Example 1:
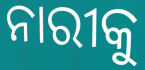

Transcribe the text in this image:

ନାରୀକୁ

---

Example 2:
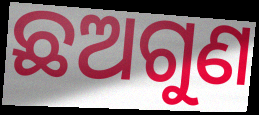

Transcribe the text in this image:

ଛଅଗୁଣ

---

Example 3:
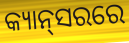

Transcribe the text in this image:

କ୍ୟାନ୍‌ସରରେ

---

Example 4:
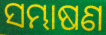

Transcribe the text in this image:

ସମ୍ଭାଷଣ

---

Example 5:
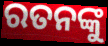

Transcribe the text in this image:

ରତନଙ୍କୁ